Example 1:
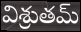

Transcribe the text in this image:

విశ్రుతమ్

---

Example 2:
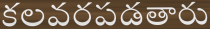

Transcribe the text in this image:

కలవరపడతారు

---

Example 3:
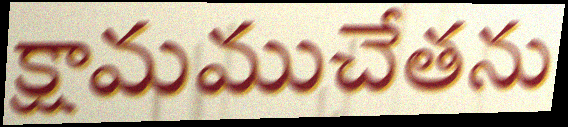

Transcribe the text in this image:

క్షామముచేతను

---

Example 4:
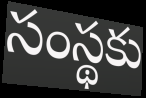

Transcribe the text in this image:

సంస్థకు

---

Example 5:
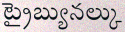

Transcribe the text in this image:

ట్రైబ్యునల్కు